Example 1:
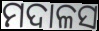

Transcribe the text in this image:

ମଦାଳସ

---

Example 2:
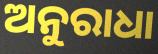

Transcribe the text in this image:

ଅନୁରାଧା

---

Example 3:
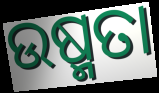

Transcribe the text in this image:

ଉଷ୍ମତା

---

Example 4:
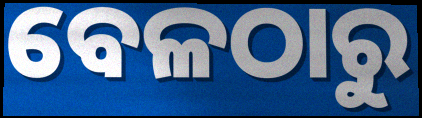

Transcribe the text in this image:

ବେଳଠାରୁ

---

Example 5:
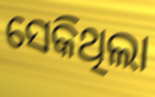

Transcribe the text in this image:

ସେକିଥିଲା